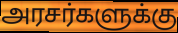
அரசர்களுக்கு